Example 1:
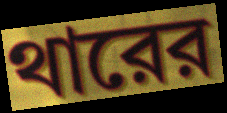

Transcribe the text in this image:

থারের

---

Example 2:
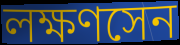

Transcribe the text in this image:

লক্ষণসেন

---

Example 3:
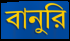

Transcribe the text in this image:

বানুরি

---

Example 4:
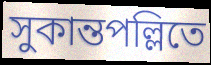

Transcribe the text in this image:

সুকান্তপল্লিতে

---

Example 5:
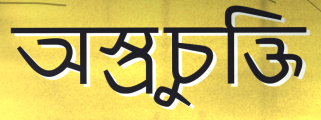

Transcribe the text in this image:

অস্ত্রচুক্তি